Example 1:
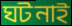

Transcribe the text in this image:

ঘটনাই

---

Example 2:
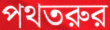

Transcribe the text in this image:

পথতরুর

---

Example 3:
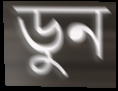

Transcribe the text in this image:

ডুন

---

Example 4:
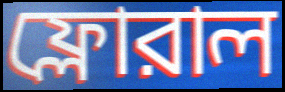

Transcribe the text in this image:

ফ্লোরাল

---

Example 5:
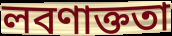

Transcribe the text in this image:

লবণাক্ততা